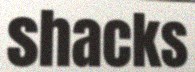
shacks